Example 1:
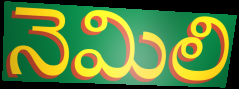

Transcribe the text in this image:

నెమిలి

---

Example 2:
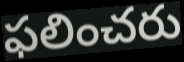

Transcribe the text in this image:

ఫలించరు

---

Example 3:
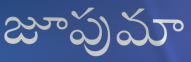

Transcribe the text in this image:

జూపుమా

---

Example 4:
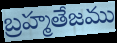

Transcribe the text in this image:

బ్రహ్మతేజము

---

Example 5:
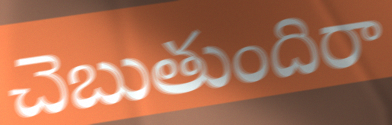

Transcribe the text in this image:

చెబుతుందిరా